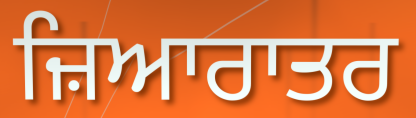
ਜ਼ਿਆਰਾਤਰ